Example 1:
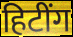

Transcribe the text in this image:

हिटींग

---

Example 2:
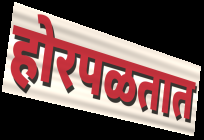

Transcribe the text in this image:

होरपळतात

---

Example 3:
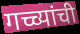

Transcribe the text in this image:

गच्च्यांची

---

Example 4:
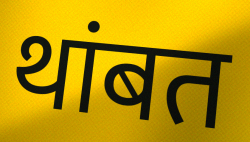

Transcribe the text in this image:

थांबत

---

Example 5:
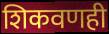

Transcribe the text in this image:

शिकवणही